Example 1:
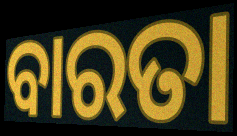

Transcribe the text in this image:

ବାରତା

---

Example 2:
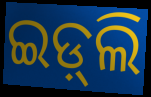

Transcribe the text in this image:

ଇଡ଼୍‌ଲି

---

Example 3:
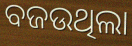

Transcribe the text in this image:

ବଜଉଥିଲା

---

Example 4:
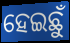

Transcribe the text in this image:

ହେଇଛୁଁ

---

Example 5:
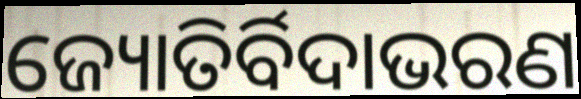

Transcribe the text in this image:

ଜ୍ୟୋତିର୍ବିଦାଭରଣ